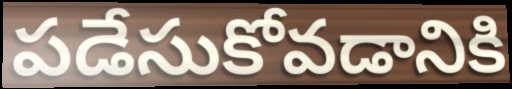
పడేసుకోవడానికి